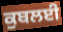
ਕੁਬਲਈ